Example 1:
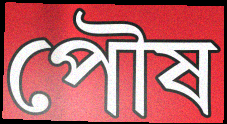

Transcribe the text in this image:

পৌষ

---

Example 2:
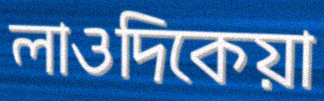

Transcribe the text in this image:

লাওদিকেয়া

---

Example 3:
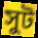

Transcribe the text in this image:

সুট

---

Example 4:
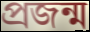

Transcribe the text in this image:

প্রজন্ম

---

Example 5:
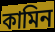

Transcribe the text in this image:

কামিন